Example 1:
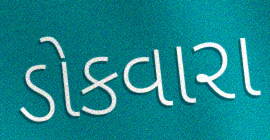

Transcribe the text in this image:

ડોકવારા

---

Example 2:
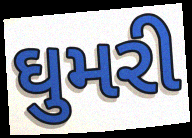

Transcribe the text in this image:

ઘુમરી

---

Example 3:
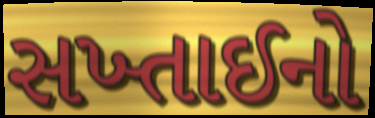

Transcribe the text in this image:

સખ્તાઈનો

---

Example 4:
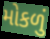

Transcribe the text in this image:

મોકળું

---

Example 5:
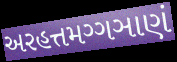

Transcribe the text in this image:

અરહત્તમગ્ગઞાણં